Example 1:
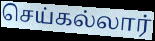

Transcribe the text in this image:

செய்கல்லார்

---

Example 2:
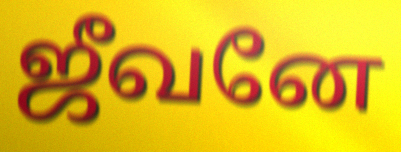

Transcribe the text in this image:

ஜீவனே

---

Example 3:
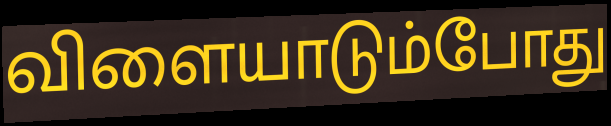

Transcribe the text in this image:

விளையாடும்போது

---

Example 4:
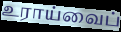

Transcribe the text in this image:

உராய்வைப்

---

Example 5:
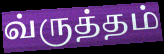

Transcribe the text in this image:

வ்ருத்தம்